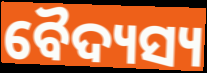
ବୈଦ୍ୟସ୍ୟ